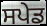
ਸਪੇਡ